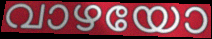
വാഴയോ